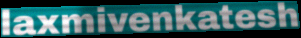
laxmivenkatesh